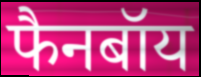
फैनबॉय